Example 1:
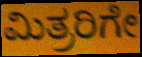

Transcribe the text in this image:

ಮಿತ್ರರಿಗೇ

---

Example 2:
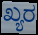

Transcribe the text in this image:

ಖ್ಯರ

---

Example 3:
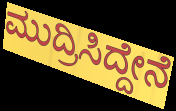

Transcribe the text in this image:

ಮುದ್ರಿಸಿದ್ದೇನೆ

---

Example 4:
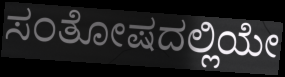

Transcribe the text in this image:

ಸಂತೋಷದಲ್ಲಿಯೇ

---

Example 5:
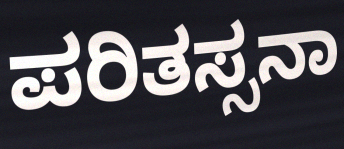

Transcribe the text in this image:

ಪರಿತಸ್ಸನಾ